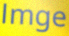
Imge